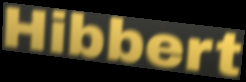
Hibbert